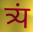
त्र्यं